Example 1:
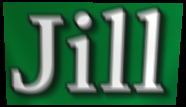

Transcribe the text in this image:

Jill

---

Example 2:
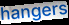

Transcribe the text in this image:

hangers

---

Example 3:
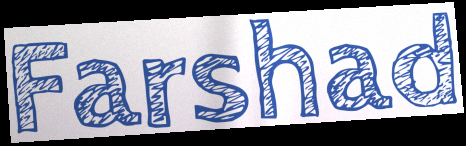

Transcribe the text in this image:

Farshad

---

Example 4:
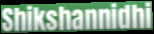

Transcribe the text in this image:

Shikshannidhi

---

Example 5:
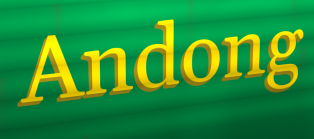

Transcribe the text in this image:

Andong